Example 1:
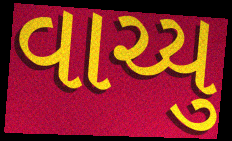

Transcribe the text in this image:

વાચ્યુ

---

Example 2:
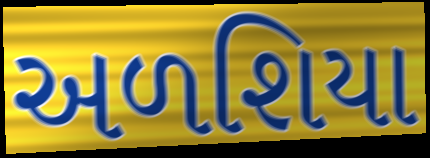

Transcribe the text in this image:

અળશિયા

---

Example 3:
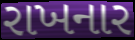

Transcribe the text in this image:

રાખનાર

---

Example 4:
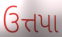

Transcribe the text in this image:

ઉત્તપા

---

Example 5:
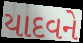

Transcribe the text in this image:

યાદવને